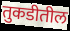
तुकडीतील